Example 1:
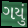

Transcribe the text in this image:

ગયું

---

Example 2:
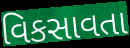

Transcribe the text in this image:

વિકસાવતા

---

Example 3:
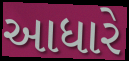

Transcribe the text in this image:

આધારે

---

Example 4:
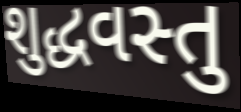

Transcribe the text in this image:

શુદ્ધવસ્તુ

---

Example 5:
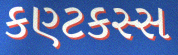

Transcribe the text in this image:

કણ્ટકસ્સ